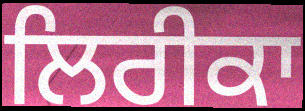
ਲਿਰੀਕਾ